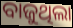
ବାଜୁଥିଲା